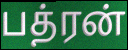
பத்ரன்